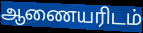
ஆணையரிடம்